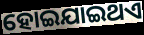
ହୋଇଯାଇଥଏ